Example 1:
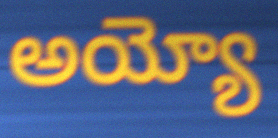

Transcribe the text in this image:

అయ్యో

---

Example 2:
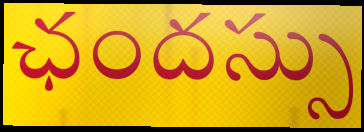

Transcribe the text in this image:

ఛందస్సు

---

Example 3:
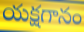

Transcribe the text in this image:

యక్షగానం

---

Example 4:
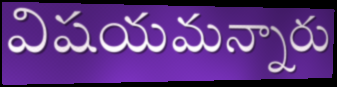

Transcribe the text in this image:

విషయమన్నారు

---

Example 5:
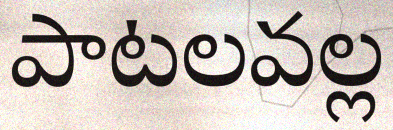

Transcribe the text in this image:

పాటలవల్ల